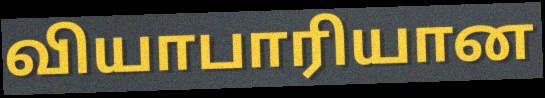
வியாபாரியான